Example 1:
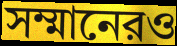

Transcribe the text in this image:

সম্মানেরও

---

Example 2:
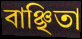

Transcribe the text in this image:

বাঞ্ছিতা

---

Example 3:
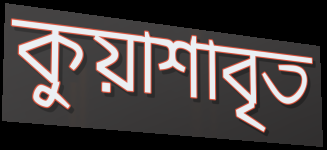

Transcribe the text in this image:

কুয়াশাবৃত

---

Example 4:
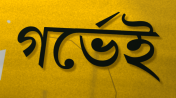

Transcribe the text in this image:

গর্ভেই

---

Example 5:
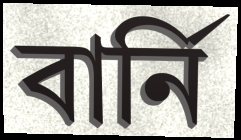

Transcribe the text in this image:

বার্নি